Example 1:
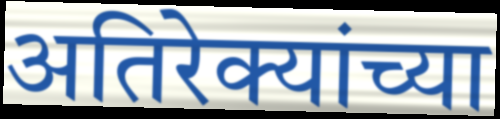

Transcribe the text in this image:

अतिरेक्‍यांच्या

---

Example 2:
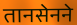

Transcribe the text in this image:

तानसेनने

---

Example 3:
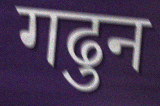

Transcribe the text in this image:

गढुन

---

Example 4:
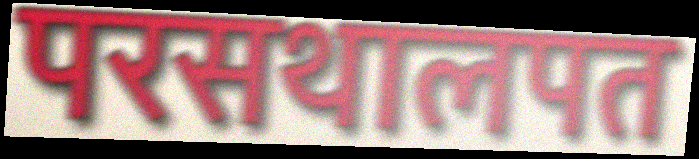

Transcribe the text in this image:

परसथालपत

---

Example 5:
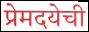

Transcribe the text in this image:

प्रेमदयेची